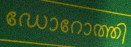
ഡോറോത്തി